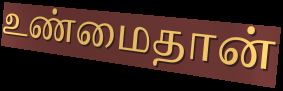
உண்மைதான்